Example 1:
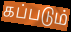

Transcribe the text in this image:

கப்படும்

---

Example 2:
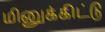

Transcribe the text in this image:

மினுக்கிட்டு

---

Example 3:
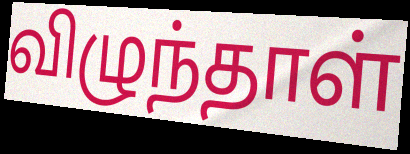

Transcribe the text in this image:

விழுந்தாள்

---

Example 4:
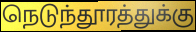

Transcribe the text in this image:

நெடுந்தூரத்துக்கு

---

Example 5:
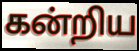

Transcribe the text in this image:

கன்றிய